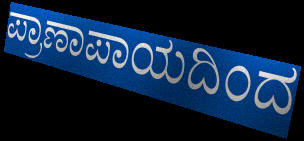
ಪ್ರಾಣಾಪಾಯದಿಂದ